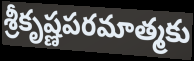
శ్రీకృష్ణపరమాత్మకు